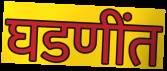
घडणींत